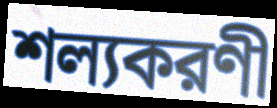
শল্যকরণী